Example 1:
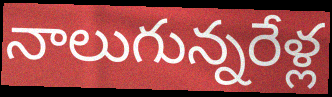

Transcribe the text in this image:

నాలుగున్నరేళ్ల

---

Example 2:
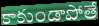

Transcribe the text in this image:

కాకుండాపోతే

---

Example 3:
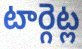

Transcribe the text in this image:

టార్గెట్ల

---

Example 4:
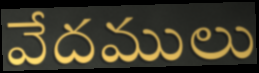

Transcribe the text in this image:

వేదములు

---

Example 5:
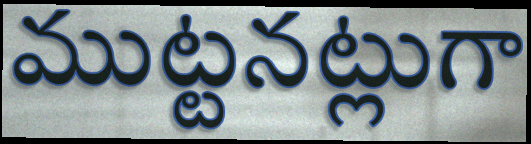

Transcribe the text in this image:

ముట్టనట్లుగా